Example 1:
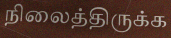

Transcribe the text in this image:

நிலைத்திருக்க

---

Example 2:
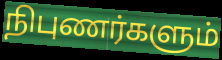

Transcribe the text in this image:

நிபுணர்களும்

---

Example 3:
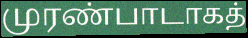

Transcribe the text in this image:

முரண்பாடாகத்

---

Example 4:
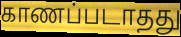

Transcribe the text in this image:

காணப்படாதது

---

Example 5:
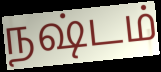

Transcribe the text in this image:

நஷ்டம்